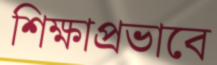
শিক্ষাপ্রভাবে